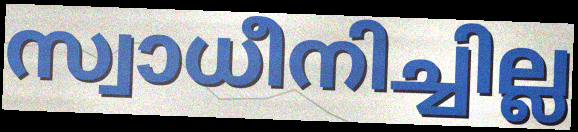
സ്വാധീനിച്ചില്ല